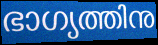
ഭാഗ്യത്തിനു